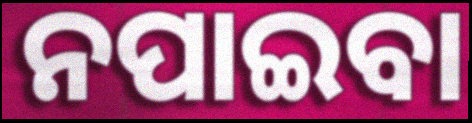
ନପାଇବା